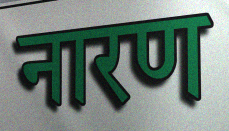
नारण